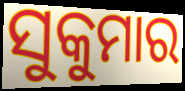
ସୁକୁମାର